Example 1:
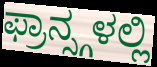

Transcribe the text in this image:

ಫ್ರಾನ್ಸ್ಗಳಲ್ಲಿ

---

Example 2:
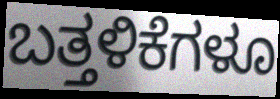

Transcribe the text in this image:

ಬತ್ತಳಿಕೆಗಳೂ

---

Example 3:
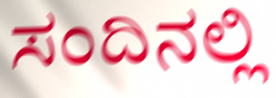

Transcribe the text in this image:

ಸಂದಿನಲ್ಲಿ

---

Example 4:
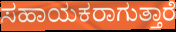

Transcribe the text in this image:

ಸಹಾಯಕರಾಗುತ್ತಾರೆ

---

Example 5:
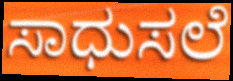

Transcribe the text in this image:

ಸಾಧುಸಲೆ